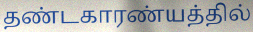
தண்டகாரண்யத்தில்